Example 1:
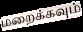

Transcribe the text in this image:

மறைக்கவும்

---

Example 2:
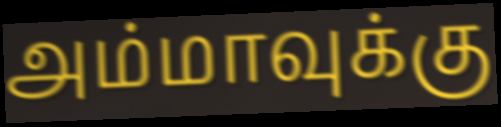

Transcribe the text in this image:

அம்மாவுக்கு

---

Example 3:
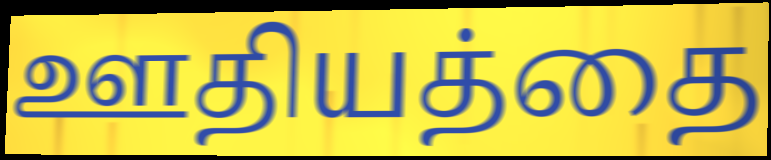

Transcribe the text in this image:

ஊதியத்தை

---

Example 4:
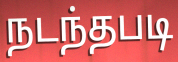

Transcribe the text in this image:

நடந்தபடி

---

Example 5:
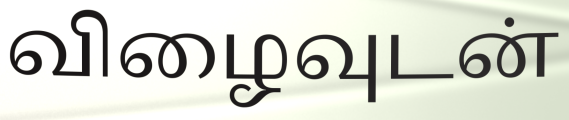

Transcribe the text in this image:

விழைவுடன்